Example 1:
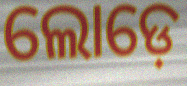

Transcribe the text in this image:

ଲୋଡ଼େ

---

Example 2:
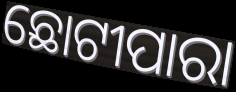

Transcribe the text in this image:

ଛୋଟୀପାରା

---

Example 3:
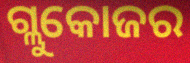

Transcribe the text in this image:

ଗ୍ଲୁକୋଜର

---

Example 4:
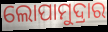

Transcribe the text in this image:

ଲୋପାମୁଦ୍ରାର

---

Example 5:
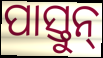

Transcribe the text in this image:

ପାସ୍ତୁନ୍